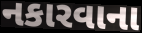
નકારવાના